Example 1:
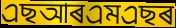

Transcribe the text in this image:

এছআৰএমএছৰ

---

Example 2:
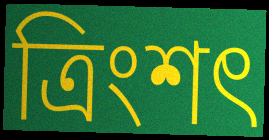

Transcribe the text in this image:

ত্ৰিংশৎ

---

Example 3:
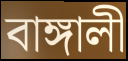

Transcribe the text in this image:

বাঙ্গালী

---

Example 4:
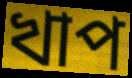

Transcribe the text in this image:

খাপ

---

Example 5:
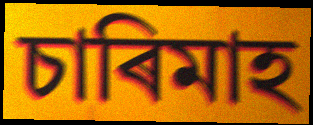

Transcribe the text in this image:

চাৰিমাহ